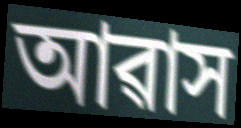
আৱাস